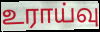
உராய்வு